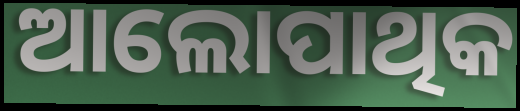
ଆଲୋପାଥିକ